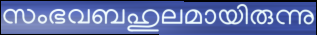
സംഭവബഹുലമായിരുന്നു